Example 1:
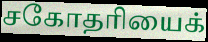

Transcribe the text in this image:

சகோதரியைக்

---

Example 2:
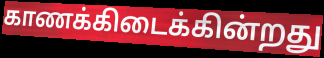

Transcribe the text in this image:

காணக்கிடைக்கின்றது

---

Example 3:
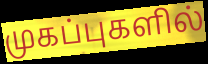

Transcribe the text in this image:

முகப்புகளில்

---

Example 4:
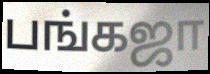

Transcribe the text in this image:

பங்கஜா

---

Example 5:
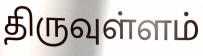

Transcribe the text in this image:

திருவுள்ளம்